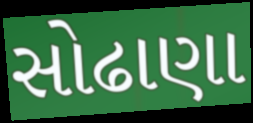
સોઢાણા